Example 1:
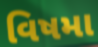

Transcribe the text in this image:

વિષમા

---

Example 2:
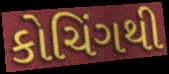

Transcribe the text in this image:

કોચિંગથી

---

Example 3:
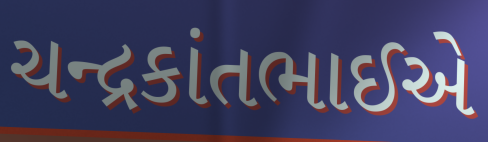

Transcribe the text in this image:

ચન્દ્રકાંતભાઈએ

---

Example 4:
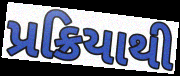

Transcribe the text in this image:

પ્રક્રિયાથી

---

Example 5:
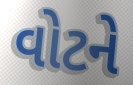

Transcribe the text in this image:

વોટને